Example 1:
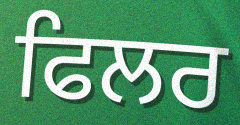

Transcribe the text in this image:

ਫਿਲਰ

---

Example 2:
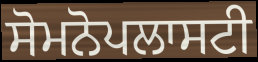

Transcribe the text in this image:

ਸੋਮਨੋਪਲਾਸਟੀ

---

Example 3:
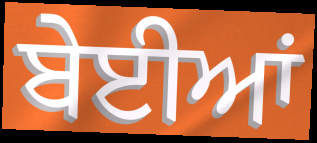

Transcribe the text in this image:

ਬੇਈਆਂ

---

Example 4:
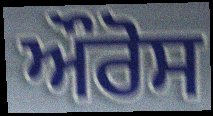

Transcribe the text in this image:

ਔਰੋਸ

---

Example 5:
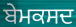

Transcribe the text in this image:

ਬੇਮਕਸਦ